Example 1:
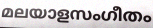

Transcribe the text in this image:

മലയാളസംഗീതം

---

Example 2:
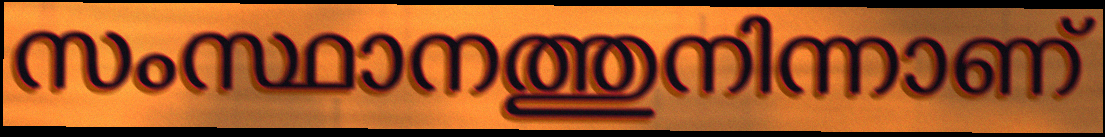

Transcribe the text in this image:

സംസ്ഥാനത്തുനിന്നാണ്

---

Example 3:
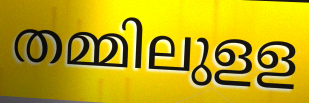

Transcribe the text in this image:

തമ്മിലുളള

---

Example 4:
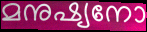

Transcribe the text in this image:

മനുഷ്യനോ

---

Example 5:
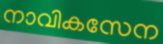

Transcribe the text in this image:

നാവികസേന